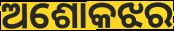
ଅଶୋକଝର